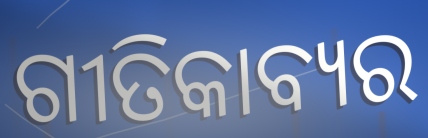
ଗୀତିକାବ୍ୟର